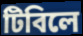
টিবিলে